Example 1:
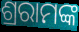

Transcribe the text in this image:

ଶ୍ରରାମଙ୍କ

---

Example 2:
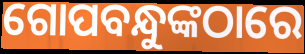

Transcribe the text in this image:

ଗୋପବନ୍ଧୁଙ୍କଠାରେ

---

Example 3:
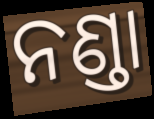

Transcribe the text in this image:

ନଣ୍ଡା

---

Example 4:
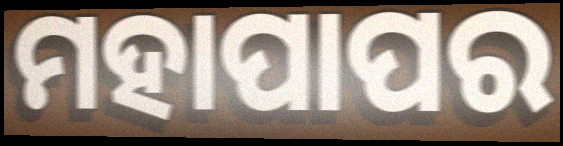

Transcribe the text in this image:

ମହାପାପର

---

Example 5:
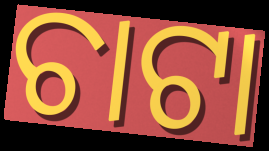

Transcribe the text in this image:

ଚାଟା